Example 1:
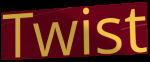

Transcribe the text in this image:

Twist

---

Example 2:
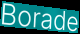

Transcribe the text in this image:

Borade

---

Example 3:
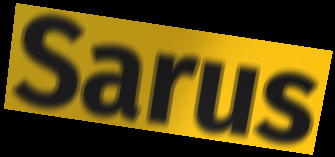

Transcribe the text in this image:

Sarus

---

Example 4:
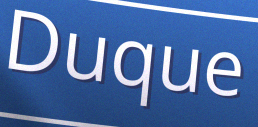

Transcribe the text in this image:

Duque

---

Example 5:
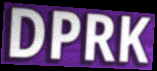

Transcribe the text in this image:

DPRK